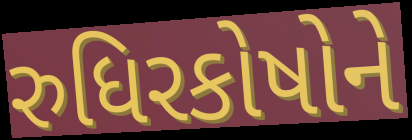
રુધિરકોષોને